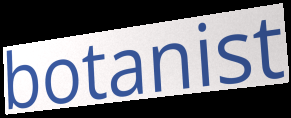
botanist